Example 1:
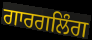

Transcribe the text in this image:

ਗਾਰਗਲਿੰਗ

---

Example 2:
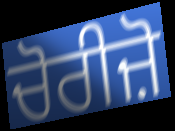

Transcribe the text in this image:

ਚੋਰੀਜ਼ੋ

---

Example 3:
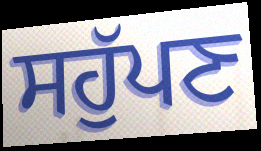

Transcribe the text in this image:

ਸਹੁੱਪਣ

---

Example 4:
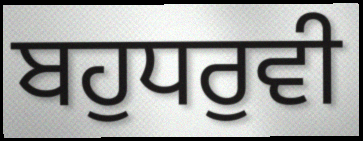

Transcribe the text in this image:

ਬਹੁਧਰੁਵੀ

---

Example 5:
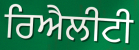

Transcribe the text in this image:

ਰਿਐਲੀਟੀ